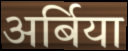
अर्बिया